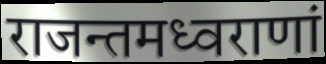
राजन्तमध्वराणां